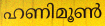
ഹണിമൂൺ